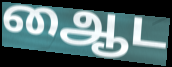
ஆைட